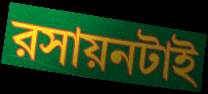
রসায়নটাই